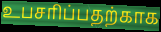
உபசரிப்பதற்காக